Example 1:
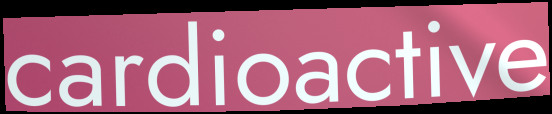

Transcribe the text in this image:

cardioactive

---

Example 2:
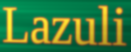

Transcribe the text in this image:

Lazuli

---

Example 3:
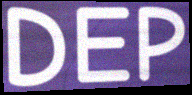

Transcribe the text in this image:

DEP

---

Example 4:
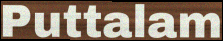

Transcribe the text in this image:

Puttalam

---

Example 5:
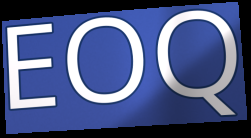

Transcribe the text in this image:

EOQ